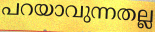
പറയാവുന്നതല്ല